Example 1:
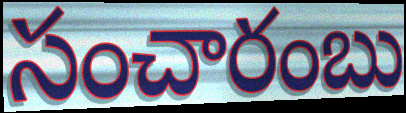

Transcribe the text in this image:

సంచారంబు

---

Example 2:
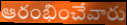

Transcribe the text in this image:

ఆరంభించేవారు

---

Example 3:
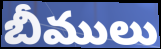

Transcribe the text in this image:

బీములు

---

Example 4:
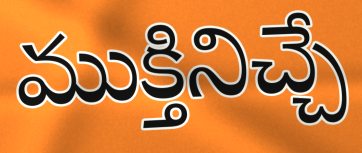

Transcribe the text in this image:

ముక్తినిచ్చే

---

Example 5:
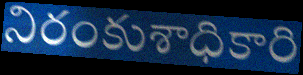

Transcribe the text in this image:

నిరంకుశాధికారి